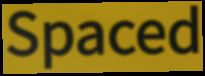
Spaced